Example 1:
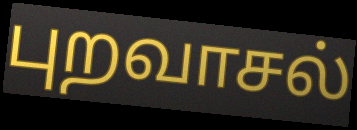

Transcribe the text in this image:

புறவாசல்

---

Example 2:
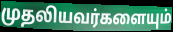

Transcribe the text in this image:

முதலியவர்களையும்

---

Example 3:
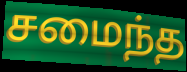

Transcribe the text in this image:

சமைந்த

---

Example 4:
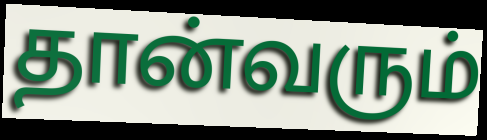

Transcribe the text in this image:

தான்வரும்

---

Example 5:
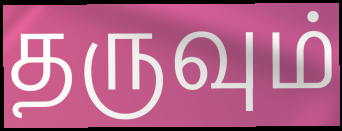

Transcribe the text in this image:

தருவும்